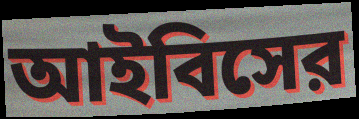
আইবিসের